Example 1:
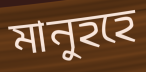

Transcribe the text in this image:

মানুহহে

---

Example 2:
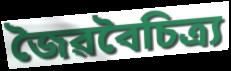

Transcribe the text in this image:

জৈৱবৈচিত্ৰ্য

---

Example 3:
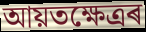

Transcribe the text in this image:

আয়তক্ষেত্ৰৰ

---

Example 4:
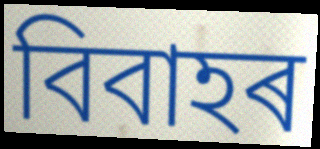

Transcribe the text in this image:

বিবাহৰ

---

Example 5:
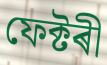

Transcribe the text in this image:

ফেক্টৰী